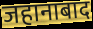
जहानाबाद